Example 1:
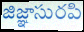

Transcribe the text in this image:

జిజ్ఞాసురపి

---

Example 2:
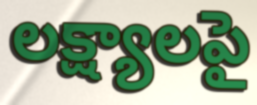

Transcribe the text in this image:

లక్ష్యాలపై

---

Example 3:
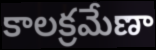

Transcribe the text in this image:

కాలక్రమేణా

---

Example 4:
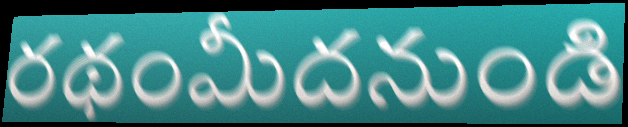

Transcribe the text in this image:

రథంమీదనుండి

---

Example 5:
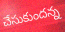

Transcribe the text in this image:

చేసుకుందన్న